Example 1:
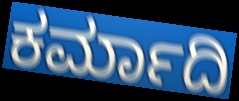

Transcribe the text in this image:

ಕರ್ಮಾದಿ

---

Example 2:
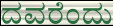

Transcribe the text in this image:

ದವರೆಂದು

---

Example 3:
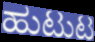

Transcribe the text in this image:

ಹುಟುಟ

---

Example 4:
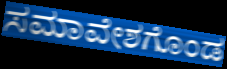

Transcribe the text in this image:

ಸಮಾವೇಶಗೊಂಡ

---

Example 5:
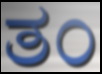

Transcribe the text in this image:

ತಂ